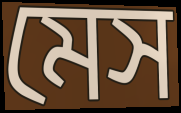
মেস